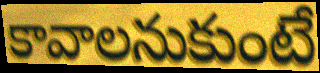
కావాలనుకుంటే